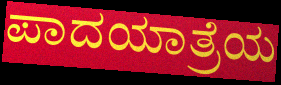
ಪಾದಯಾತ್ರೆಯ